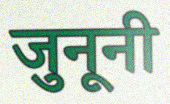
जुनूनी